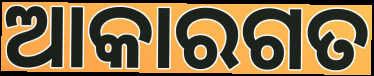
ଆକାରଗତ